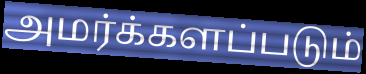
அமர்க்களப்படும்